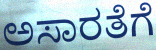
ಅಸಾರತೆಗೆ